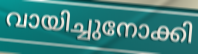
വായിച്ചുനോക്കി